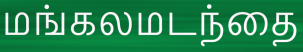
மங்கலமடந்தை